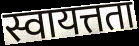
स्वायत्तता